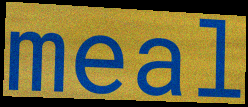
meal